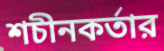
শচীনকর্তার